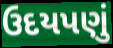
ઉદયપણું